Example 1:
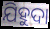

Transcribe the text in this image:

ଯିହୁଦା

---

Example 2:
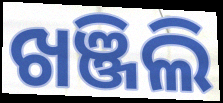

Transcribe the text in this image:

ଖଞ୍ଜିଲି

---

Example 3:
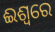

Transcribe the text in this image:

ଈଶ୍ଵରେ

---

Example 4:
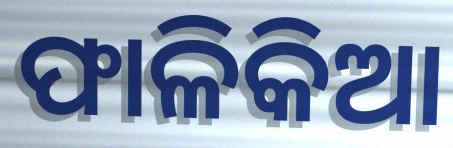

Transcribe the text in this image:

ଫାଳିକିଆ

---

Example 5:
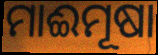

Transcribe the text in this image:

ମାଈମୂଷା